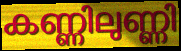
കണ്ണിലുണ്ണി